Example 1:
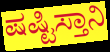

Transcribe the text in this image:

ಷಷ್ಟಿಸ್ತಾನಿ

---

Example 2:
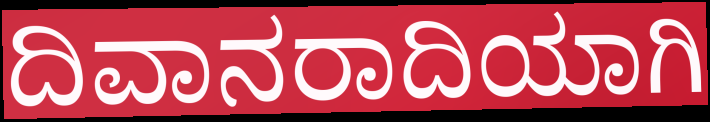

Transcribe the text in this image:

ದಿವಾನರಾದಿಯಾಗಿ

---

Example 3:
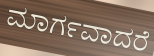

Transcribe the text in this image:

ಮಾರ್ಗವಾದರೆ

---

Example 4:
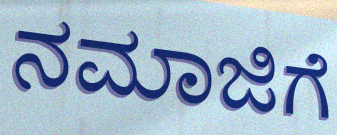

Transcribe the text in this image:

ನಮಾಜಿಗೆ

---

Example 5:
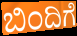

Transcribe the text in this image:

ಬಿಂದಿಗೆ